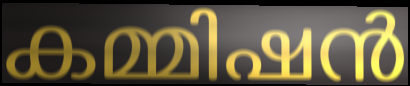
കമ്മിഷൻ